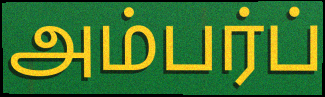
அம்பர்ப்